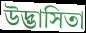
উদ্ভাসিতা